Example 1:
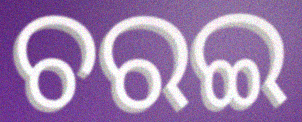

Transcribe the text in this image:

ଚରଇ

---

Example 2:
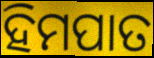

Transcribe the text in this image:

ହିମପାତ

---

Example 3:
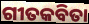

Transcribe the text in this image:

ଗୀତକବିତା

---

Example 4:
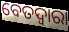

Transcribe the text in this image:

ବେତଦ୍ୱାରା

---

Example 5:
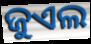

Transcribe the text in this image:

ଜୁଏଲ